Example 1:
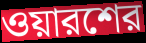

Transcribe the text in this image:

ওয়ারশের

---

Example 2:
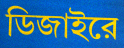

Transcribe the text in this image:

ডিজাইরে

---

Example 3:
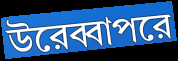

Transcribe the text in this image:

উরেব্বাপরে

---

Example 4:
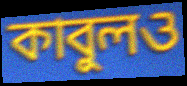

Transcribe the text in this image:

কাবুলও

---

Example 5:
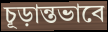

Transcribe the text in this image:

চূড়ান্তভাবে